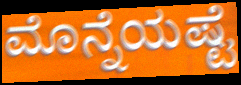
ಮೊನ್ನೆಯಷ್ಟೆ